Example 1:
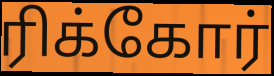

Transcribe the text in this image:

ரிக்கோர்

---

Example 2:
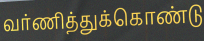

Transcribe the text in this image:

வர்ணித்துக்கொண்டு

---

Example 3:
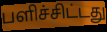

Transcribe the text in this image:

பளிச்சிட்டது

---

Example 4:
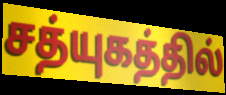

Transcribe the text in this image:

சத்யுகத்தில்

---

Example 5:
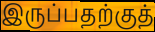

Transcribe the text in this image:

இருப்பதற்குத்